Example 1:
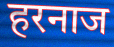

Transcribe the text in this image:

हरनाज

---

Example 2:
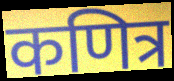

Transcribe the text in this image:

कणित्र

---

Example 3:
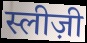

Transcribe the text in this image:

स्लीज़ी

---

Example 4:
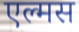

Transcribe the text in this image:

एल्मस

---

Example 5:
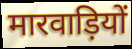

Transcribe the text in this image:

मारवाड़ियों